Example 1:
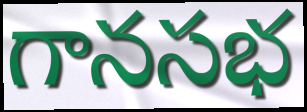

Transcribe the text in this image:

గానసభ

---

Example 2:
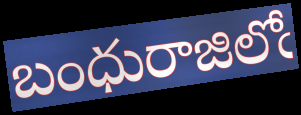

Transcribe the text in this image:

బంధురాజిలోఁ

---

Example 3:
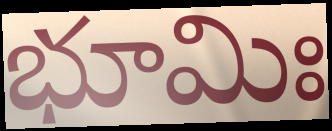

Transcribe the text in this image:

భూమిః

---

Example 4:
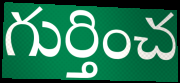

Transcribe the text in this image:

గుర్తించ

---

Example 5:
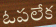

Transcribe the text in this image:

ఓపలేక